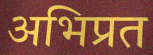
अभिप्रत